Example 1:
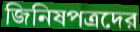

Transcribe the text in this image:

জিনিষপত্রদের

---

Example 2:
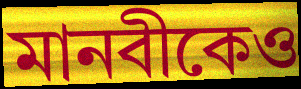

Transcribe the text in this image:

মানবীকেও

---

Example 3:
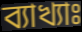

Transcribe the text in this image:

ব্যাখ্যাঃ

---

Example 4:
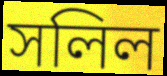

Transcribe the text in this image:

সলিল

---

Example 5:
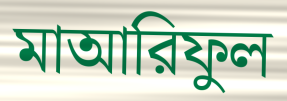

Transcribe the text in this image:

মাআরিফুল